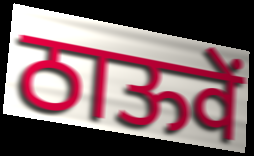
ठाऊवें